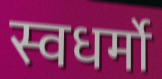
स्वधर्मो